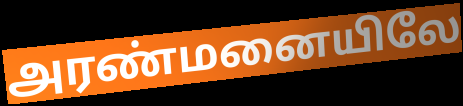
அரண்மனையிலே